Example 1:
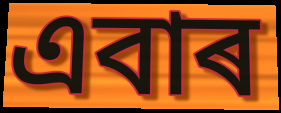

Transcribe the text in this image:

এবাৰ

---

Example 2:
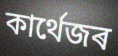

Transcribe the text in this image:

কাৰ্থেজৰ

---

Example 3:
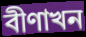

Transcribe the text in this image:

বীণাখন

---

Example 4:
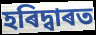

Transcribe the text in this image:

হৰিদ্বাৰত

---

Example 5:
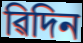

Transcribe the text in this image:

ৱিদিন